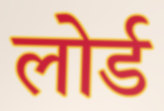
लोर्ड